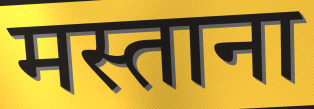
मस्ताना